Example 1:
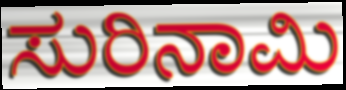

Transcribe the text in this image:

ಸುರಿನಾಮಿ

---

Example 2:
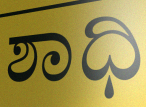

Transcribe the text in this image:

ಶಾಧಿ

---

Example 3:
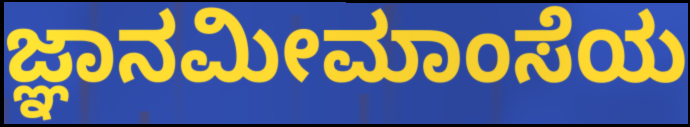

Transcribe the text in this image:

ಜ್ಞಾನಮೀಮಾಂಸೆಯ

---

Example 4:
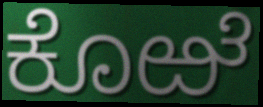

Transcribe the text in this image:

ಕೊಱೆ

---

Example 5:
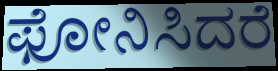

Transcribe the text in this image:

ಫೋನಿಸಿದರೆ